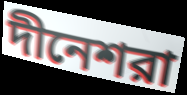
দীনেশরা